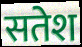
सतेश